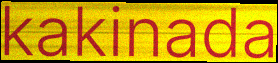
kakinada